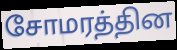
சோமரத்தின